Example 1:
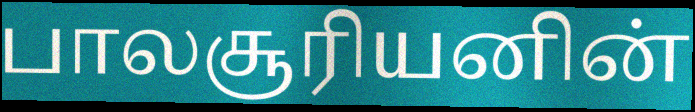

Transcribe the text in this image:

பாலசூரியனின்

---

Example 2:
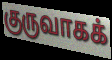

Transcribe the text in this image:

குருவாகக்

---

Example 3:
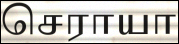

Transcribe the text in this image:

செராயா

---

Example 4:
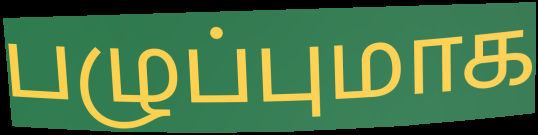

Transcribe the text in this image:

பழுப்புமாக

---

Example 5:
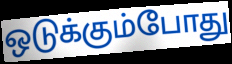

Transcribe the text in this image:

ஒடுக்கும்போது